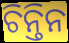
ଚିନ୍ତିନ